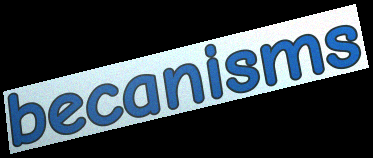
becanisms